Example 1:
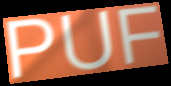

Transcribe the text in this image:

PUF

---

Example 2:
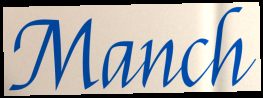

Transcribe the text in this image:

Manch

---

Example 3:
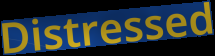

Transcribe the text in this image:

Distressed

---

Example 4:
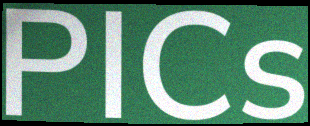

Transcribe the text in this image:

PICs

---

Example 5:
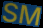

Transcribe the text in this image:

SM